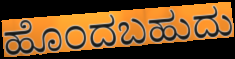
ಹೊಂದಬಹುದು